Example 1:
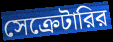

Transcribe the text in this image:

সেক্রেটারির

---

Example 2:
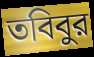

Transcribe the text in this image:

তবিবুর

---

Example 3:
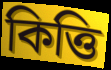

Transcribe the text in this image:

কিত্তি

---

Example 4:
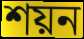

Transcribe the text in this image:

শয়ন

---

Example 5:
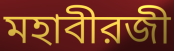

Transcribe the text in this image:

মহাবীরজী